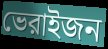
ভেরাইজন